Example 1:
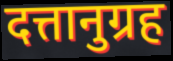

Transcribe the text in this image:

दत्तानुग्रह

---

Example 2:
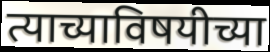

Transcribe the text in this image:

त्याच्याविषयीच्या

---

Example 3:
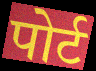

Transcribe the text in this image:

पोर्ट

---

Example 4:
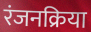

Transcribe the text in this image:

रंजनक्रिया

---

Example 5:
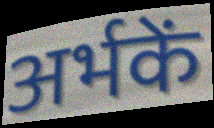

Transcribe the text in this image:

अर्भकें